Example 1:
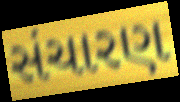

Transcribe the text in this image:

સંચારણ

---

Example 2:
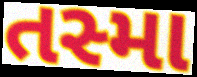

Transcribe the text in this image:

તસ્મા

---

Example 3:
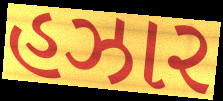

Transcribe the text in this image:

હઝાર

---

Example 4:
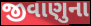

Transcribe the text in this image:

જીવાણુના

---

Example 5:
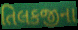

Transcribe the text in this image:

તિલકજીના